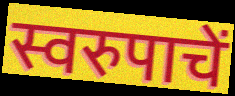
स्वरुपाचें